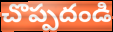
చొప్పదండి